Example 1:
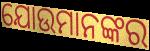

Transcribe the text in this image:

ଯୋଉମାନଙ୍କର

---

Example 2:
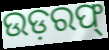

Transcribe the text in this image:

ଉଡ଼ରଫ୍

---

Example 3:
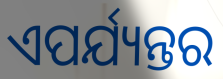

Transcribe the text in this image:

ଏପର୍ଯ୍ୟନ୍ତର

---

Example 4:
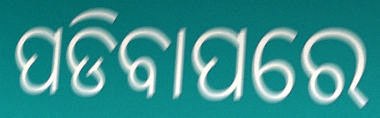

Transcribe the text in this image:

ପଡିବାପରେ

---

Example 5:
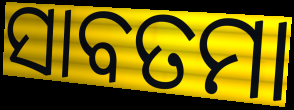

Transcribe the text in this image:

ସାବତମା